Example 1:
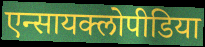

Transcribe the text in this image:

एन्सायक्लोपीडिया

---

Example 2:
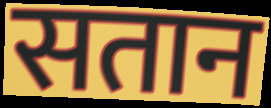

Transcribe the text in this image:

सतान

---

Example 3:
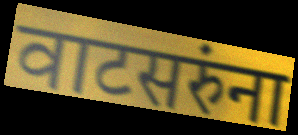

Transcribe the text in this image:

वाटसरुंना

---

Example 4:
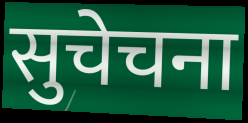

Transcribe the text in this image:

सुचेचना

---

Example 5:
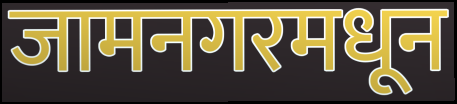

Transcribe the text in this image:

जामनगरमधून